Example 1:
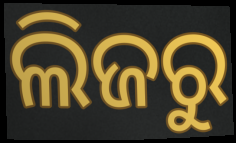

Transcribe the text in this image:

ଲିଜରୁ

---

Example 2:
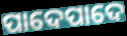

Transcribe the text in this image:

ପାଦେପାଦେ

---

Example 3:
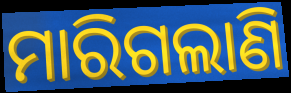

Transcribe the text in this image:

ମାରିଗଲାଣି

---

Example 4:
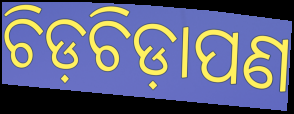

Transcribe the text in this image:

ଚିଡ଼ଚିଡ଼ାପଣ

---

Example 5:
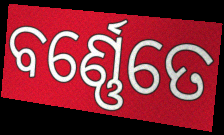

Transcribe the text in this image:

ବର୍ଣ୍ଣେତେ